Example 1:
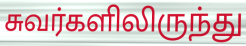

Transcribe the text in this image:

சுவர்களிலிருந்து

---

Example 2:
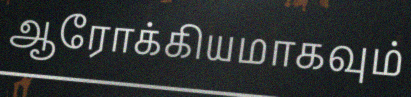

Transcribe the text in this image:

ஆரோக்கியமாகவும்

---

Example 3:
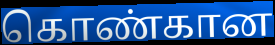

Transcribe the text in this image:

கொண்கான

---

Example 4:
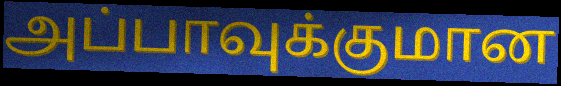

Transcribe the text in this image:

அப்பாவுக்குமான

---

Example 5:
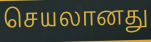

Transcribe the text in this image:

செயலானது